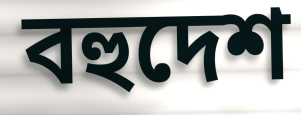
বহুদেশ